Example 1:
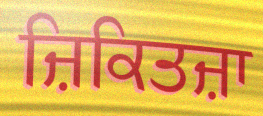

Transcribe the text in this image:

ਜ਼ਿਕਿਤਜ਼ਾ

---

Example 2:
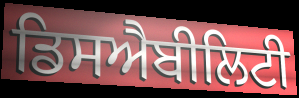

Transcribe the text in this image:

ਡਿਸਐਬੀਲਿਟੀ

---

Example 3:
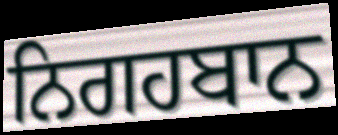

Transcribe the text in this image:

ਨਿਗਹਬਾਨ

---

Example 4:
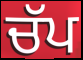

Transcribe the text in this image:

ਚੱਪ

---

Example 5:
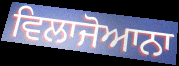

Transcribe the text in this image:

ਵਿਲਾਜੋਆਨਾ